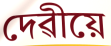
দেৱীয়ে